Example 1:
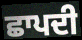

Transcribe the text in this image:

ਛਾਪਦੀ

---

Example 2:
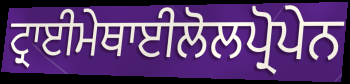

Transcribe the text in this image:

ਟ੍ਰਾਈਮੇਥਾਈਲੋਲਪ੍ਰੋਪੇਨ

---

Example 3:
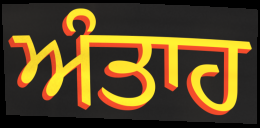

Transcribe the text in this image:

ਅੰਤਾਹ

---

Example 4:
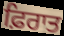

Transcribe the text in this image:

ਫ਼ਿਰਾਤ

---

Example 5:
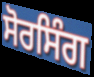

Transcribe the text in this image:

ਸੋਰਸਿੰਗ